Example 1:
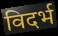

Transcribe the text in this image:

विदर्भ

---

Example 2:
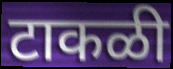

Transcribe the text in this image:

टाकळी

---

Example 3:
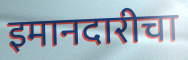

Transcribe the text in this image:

इमानदारीचा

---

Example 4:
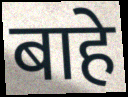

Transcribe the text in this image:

बाहे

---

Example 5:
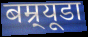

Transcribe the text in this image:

बम्र्यूडा